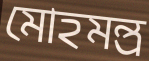
মোহমন্ত্র